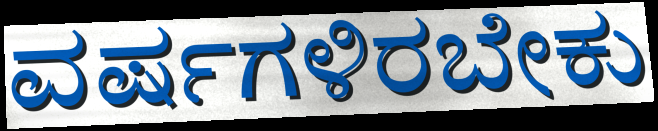
ವರ್ಷಗಳಿರಬೇಕು